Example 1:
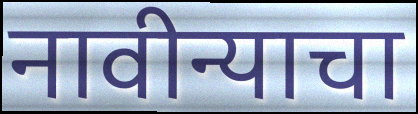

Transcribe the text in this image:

नावीन्याचा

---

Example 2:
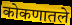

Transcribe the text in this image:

कोकणातले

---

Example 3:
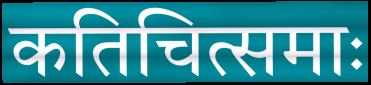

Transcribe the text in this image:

कतिचित्समाः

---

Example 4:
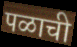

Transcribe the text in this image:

पळाची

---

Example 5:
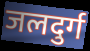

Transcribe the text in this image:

जलदुर्ग